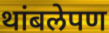
थांबलेपण